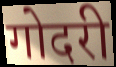
गोदरी